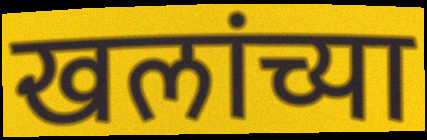
खलांच्या